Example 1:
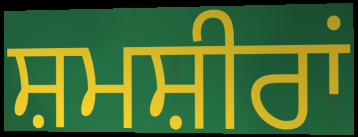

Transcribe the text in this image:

ਸ਼ਮਸ਼ੀਰਾਂ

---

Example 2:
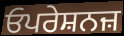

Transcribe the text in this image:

ਓਪਰੇਸ਼ਨਜ਼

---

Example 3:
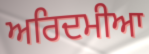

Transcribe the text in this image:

ਅਰਿਦਮੀਆ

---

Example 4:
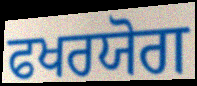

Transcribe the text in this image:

ਫਖਰਯੋਗ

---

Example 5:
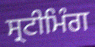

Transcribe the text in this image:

ਸ੍ਰਟੀਮਿੰਗ